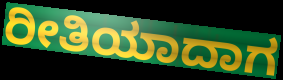
ರೀತಿಯಾದಾಗ